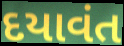
દયાવંત